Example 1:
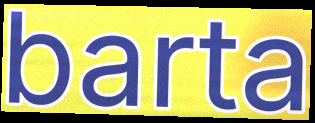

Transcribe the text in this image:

barta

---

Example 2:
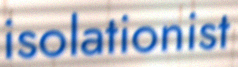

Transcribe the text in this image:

isolationist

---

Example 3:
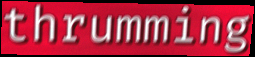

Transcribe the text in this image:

thrumming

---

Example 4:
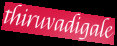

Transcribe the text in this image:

thiruvadigale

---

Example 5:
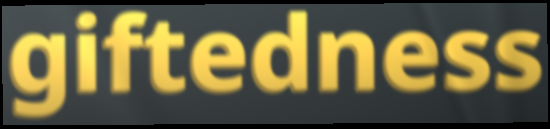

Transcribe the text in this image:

giftedness